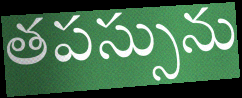
తపస్సును